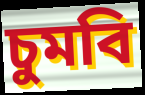
চুমবি